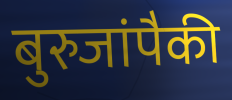
बुरुजांपैकी